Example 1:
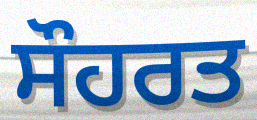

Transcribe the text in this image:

ਸੌਹਰਤ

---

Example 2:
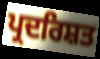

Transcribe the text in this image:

ਪ੍ਰਦਰਿਸ਼ਤ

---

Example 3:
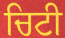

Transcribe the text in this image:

ਚਿਟੀ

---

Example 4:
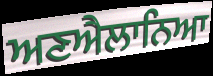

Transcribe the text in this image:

ਅਣਐਲਾਨਿਆ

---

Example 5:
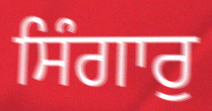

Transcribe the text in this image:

ਸਿੰਗਾਰੁ